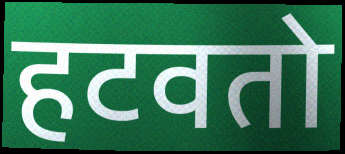
हटवतो